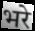
भरे